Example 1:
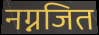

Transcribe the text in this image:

नग्नजित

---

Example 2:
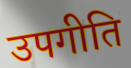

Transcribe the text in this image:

उपगीति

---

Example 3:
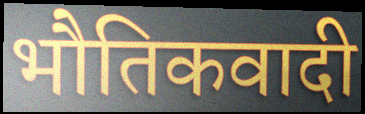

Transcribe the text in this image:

भौतिकवादी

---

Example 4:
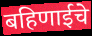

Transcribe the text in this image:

बहिणाईचे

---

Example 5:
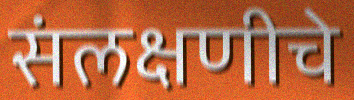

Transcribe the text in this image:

संलक्षणीचे